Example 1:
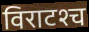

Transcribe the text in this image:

विराटश्च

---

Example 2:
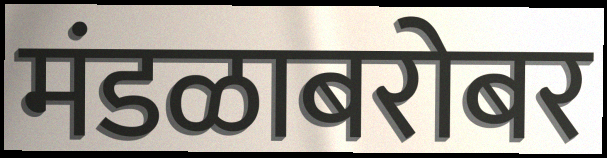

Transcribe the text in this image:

मंडळाबरोबर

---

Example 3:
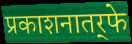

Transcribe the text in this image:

प्रकाशनातर्फे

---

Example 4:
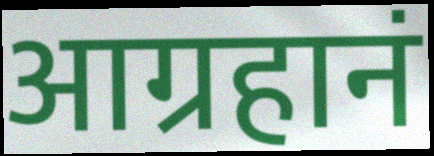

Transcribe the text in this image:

आग्रहानं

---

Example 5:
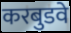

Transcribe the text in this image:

करबुडवे